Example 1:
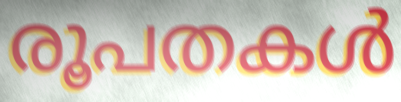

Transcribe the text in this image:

രൂപതകൾ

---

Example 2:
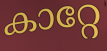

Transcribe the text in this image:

കാറ്റേ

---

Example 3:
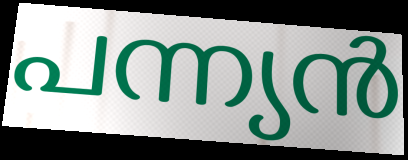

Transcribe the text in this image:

പന്ന്യൻ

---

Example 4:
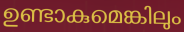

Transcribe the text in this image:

ഉണ്ടാകുമെങ്കിലും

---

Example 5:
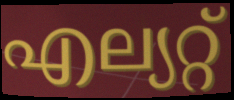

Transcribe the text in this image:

എല്യറ്റ്